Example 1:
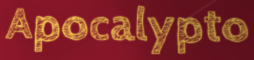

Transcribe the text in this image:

Apocalypto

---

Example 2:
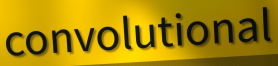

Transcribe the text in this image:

convolutional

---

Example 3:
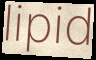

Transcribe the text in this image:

lipid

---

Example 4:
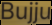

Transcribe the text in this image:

Bujju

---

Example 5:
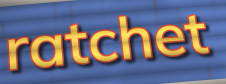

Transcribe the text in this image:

ratchet